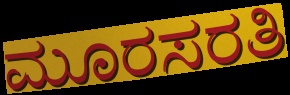
ಮೂರಸರತಿ